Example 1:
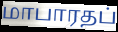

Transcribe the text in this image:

மாபாரதப்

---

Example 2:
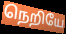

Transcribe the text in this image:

நெறியே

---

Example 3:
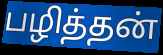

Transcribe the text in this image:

பழித்தன்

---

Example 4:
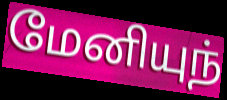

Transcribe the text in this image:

மேனியுந்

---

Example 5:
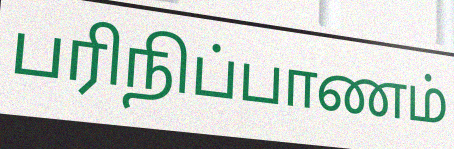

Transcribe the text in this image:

பரிநிப்பாணம்